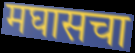
मघासचा